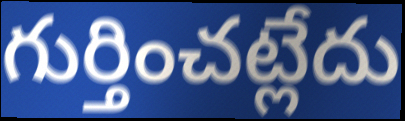
గుర్తించట్లేదు